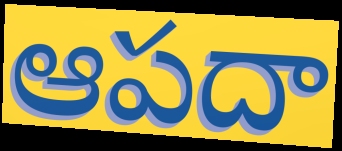
ఆపదా